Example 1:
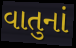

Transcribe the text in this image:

વાતુનાં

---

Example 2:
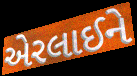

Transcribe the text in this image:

એરલાઈને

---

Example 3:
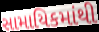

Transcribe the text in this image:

સામાયિકમાંથી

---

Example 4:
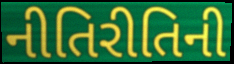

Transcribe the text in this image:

નીતિરીતિની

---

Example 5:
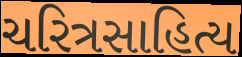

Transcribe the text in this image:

ચરિત્રસાહિત્ય